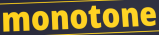
monotone